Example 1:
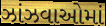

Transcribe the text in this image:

ઝાંઝવાઓમાં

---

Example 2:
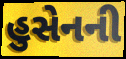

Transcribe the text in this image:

હુસેનની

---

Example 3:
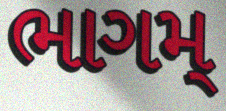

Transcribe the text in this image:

ભાગમ્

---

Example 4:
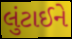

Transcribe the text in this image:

લુંટાઈને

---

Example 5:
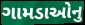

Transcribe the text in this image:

ગામડાઓનુ